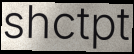
shctpt